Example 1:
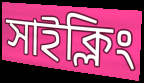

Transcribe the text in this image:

সাইক্লিং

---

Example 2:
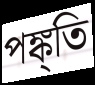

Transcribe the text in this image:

পঙ্ক্তি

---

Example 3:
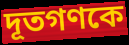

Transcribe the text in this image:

দূতগণকে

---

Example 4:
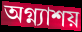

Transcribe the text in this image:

অগ্ন্যাশয়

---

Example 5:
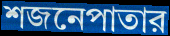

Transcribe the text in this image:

শজনেপাতার